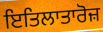
ਇਤਿਲਾਤਾਰੋਜ਼